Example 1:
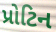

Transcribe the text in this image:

પ્રોટિન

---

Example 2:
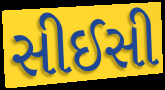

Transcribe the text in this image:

સીઈસી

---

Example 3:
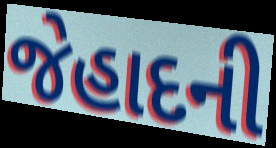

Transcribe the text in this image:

જેહાદની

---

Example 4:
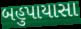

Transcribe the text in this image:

બહુપાયાસા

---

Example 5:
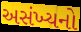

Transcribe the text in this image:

અસંખ્યનો